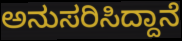
ಅನುಸರಿಸಿದ್ದಾನೆ